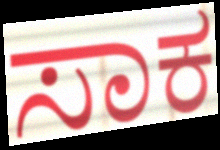
ಸಾಕ